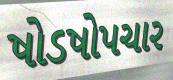
ષોડષોપચાર